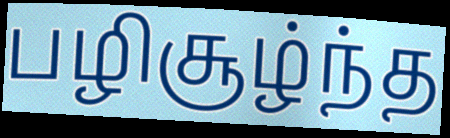
பழிசூழ்ந்த